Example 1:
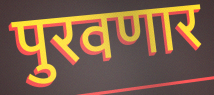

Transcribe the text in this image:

पुरवणार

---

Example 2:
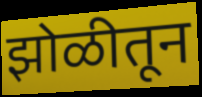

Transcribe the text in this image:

झोळीतून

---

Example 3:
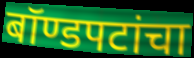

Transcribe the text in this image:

बॉण्डपटांचा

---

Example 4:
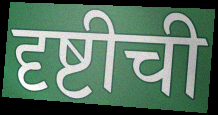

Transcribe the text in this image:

दृष्टीची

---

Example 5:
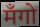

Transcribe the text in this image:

मँगो